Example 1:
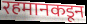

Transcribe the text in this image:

रहमानकडून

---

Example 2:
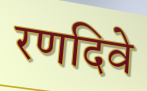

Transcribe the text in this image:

रणदिवे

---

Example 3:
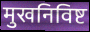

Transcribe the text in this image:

मुखनिविष्ट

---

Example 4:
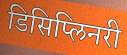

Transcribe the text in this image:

डिसिप्लिनरी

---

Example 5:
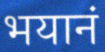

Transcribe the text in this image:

भयानं